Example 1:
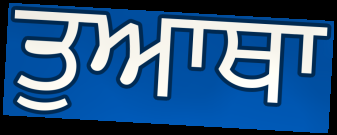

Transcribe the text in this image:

ਤੁਆਥਾ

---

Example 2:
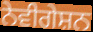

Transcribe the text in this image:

ਨੇਵੀਗੇਸ਼ਨ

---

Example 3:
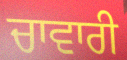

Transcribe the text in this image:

ਚਾਵਾਰੀ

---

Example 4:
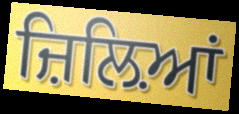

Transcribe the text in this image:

ਜ਼ਿਲ਼ਿਆਂ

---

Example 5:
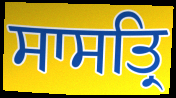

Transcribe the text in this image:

ਸਾਸਤ੍ਰਿ